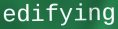
edifying